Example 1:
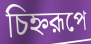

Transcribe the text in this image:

চিহ্নরূপে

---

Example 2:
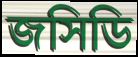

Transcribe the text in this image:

জসিডি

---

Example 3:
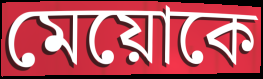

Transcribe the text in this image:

মেয়োকে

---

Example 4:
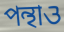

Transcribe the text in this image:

পন্থাও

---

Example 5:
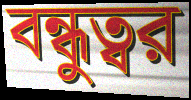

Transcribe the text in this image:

বন্ধুত্বর